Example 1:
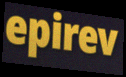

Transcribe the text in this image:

epirev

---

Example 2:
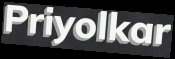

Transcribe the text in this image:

Priyolkar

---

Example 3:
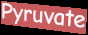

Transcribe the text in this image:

Pyruvate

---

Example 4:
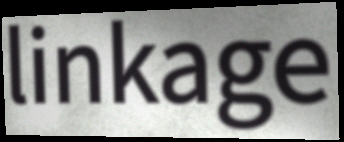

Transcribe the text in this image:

linkage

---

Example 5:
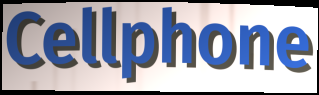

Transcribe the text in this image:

Cellphone